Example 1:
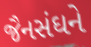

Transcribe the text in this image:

જૈનસંઘને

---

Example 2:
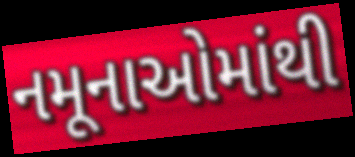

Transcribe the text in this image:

નમૂનાઓમાંથી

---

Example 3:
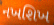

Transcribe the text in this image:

નખશિખ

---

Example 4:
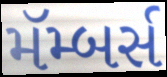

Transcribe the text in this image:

મૅમ્બર્સ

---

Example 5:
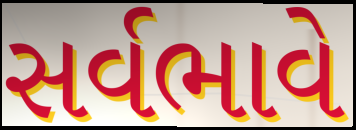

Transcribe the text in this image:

સર્વભાવે